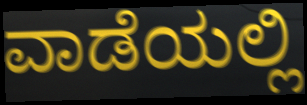
ವಾಡೆಯಲ್ಲಿ